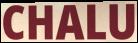
CHALU